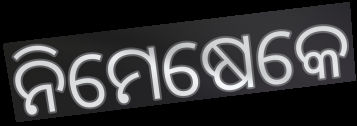
ନିମେଷେକେ